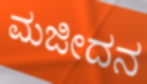
ಮಜೀದನ